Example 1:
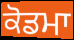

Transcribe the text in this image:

ਕੋਡਮਾ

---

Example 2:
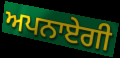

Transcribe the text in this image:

ਅਪਨਾਏਗੀ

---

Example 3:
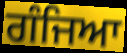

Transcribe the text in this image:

ਗੰਜਿਆ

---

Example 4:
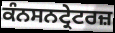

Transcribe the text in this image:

ਕੰਨਸਨਟ੍ਰੇਟਰਜ਼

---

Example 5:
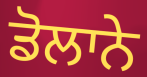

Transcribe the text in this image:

ਡੋਲਾਨੇ